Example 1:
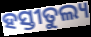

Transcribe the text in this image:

ହସ୍ତୀତୁଲ୍ୟ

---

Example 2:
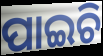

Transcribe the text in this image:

ପାଇଚି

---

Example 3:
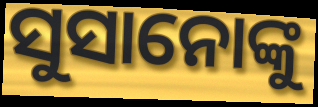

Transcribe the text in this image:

ସୁସାନୋଙ୍କୁ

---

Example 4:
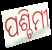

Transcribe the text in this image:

ପଶ୍ଚିମୀ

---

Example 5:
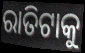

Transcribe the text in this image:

ରାତିଟାକୁ